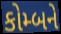
કોમ્બને